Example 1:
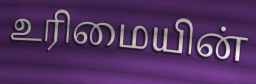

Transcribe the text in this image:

உரிமையின்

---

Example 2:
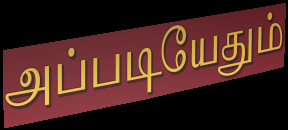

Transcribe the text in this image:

அப்படியேதும்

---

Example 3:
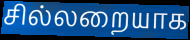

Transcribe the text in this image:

சில்லறையாக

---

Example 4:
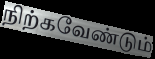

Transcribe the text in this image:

நிற்கவேண்டும்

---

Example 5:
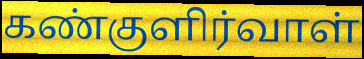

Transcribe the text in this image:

கண்குளிர்வாள்